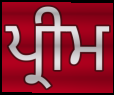
ਪ੍ਰੀਮ